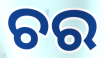
ଚର